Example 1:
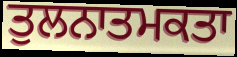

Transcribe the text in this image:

ਤੁਲਨਾਤਮਕਤਾ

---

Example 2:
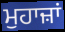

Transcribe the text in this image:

ਮੁਹਾਜ਼ਾਂ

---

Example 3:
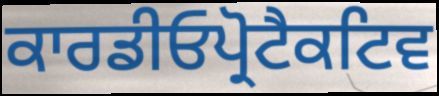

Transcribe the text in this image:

ਕਾਰਡੀਓਪ੍ਰੋਟੈਕਟਿਵ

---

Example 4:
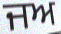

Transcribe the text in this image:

ਜਅ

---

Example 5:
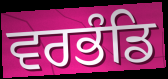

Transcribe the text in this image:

ਵਰਭੰਡਿ